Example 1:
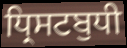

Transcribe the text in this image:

ਧ੍ਰਿਸਟਬੁਧੀ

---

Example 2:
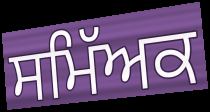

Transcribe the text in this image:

ਸਮਿੱਅਕ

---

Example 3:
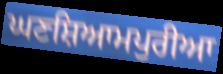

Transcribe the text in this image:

ਘਣਸ਼ਿਆਮਪੁਰੀਆ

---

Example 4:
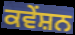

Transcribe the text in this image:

ਕਵੇਂਸ਼ਨ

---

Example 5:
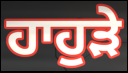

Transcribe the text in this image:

ਹਾਹੁੜੇ